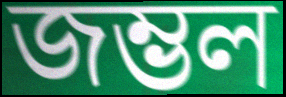
জম্ভল